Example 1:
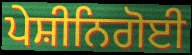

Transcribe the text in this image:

ਪੇਸ਼ੀਨਿਗੋਈ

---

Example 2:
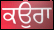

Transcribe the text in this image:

ਕਉਰਾ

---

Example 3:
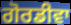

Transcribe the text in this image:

ਗੋਰਡੀਵਾ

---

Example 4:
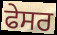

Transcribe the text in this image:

ਫੇਸਰ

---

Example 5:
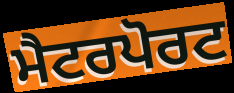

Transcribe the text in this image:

ਮੈਟਰਪੋਰਟ